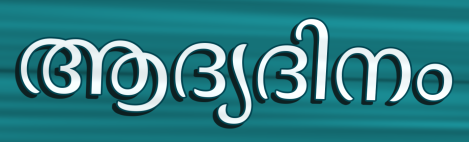
ആദ്യദിനം